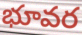
భూవర